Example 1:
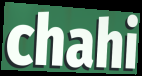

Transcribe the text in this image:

chahi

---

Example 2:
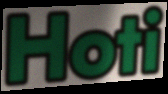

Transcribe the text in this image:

Hoti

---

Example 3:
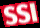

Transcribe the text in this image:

SSI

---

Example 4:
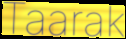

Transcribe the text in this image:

Taarak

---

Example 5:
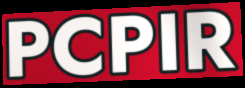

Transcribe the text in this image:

PCPIR